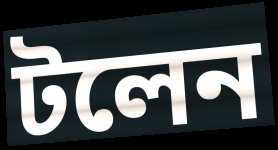
টলেন